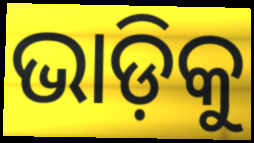
ଭାଡ଼ିକୁ